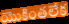
యొకింతలేక